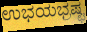
ಉಭಯಭ್ರಷ್ಟ